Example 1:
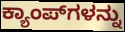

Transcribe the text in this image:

ಕ್ಯಾಂಪ್‍ಗಳನ್ನು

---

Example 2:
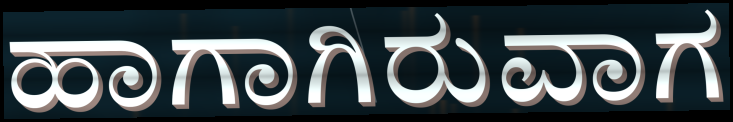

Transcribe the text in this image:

ಹಾಗಾಗಿರುವಾಗ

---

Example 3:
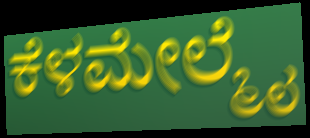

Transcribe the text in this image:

ಕೆಳಮೇಲ್ಮೈ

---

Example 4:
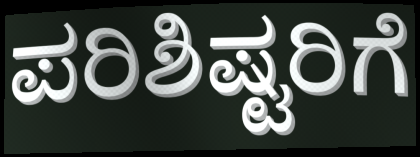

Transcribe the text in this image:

ಪರಿಶಿಷ್ಟರಿಗೆ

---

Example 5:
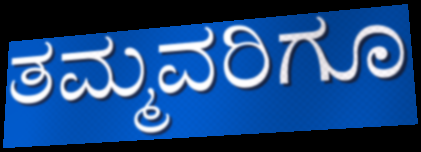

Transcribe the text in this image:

ತಮ್ಮವರಿಗೂ